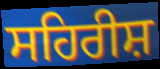
ਸਹਿਰੀਸ਼